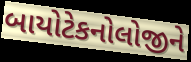
બાયોટેકનોલોજીને